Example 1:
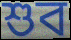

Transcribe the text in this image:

শুব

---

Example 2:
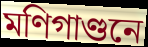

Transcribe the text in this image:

মণিগাণ্ডনে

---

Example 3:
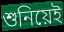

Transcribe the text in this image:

শুনিয়েই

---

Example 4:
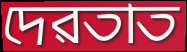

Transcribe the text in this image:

দেৱতাত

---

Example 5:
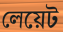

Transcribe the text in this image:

লেয়েট